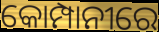
କୋମ୍ପାନୀରେ